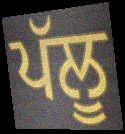
ਪੱਲੂ